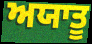
ਅਯਾਤੂ